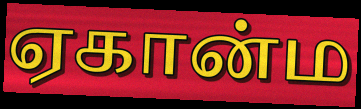
ஏகான்ம